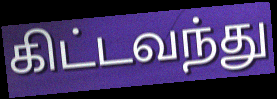
கிட்டவந்து